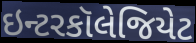
ઇન્ટરકૉલેજિયેટ